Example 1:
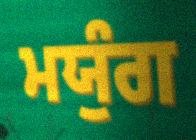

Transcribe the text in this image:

ਮਯੁੰਗ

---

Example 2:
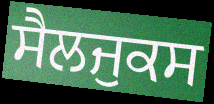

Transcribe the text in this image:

ਸੈਲਜੁਕਸ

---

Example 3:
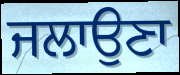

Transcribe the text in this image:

ਜਲਾਉਣਾ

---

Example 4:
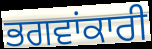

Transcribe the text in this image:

ਭਗਵਾਂਕਾਰੀ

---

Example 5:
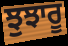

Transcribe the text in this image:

ਝੁਝਾਰੂ